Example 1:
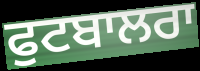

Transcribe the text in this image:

ਫੁਟਬਾਲਰਾ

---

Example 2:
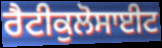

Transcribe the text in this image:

ਰੈਟੀਕੁਲੋਸਾਈਟ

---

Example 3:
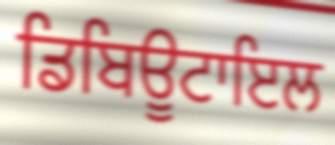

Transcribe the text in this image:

ਡਿਬਿਊਟਾਇਲ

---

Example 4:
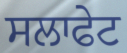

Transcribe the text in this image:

ਸਲਾਫੇਟ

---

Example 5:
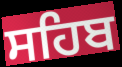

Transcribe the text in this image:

ਸਹਿਬ